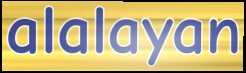
alalayan